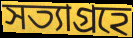
সত্যাগ্রহে